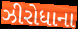
ઝીરોધાના